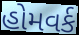
હોમવર્ક